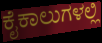
ಕೈಕಾಲುಗಳಲ್ಲಿ